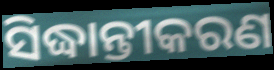
ସିଦ୍ଧାନ୍ତୀକରଣ